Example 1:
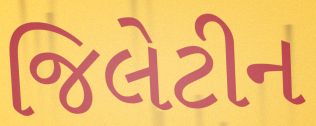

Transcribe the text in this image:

જિલેટીન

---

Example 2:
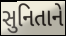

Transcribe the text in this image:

સુનિતાને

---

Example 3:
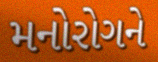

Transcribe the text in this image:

મનોરોગને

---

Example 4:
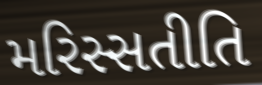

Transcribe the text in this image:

મરિસ્સતીતિ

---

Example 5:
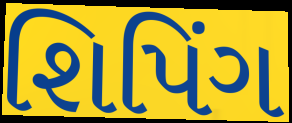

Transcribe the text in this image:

શિપિંગ